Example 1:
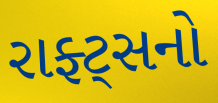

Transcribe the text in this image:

રાફ્ટ્સનો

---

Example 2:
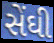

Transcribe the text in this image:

સેંઘી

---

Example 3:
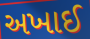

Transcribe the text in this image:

અખાઈ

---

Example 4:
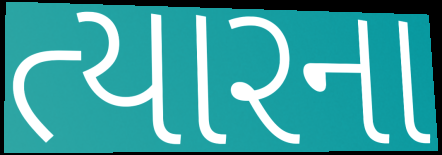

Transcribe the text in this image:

ત્યારના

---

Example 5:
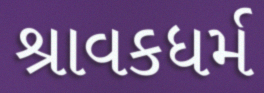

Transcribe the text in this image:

શ્રાવકધર્મ